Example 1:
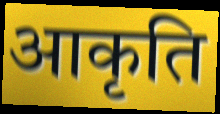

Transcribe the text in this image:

आकृति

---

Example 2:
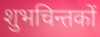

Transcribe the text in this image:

शुभचिन्तकों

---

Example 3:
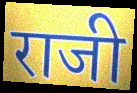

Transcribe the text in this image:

राजी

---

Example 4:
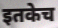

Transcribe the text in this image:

इतकेच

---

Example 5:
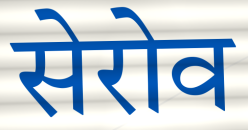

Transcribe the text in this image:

सेरोव